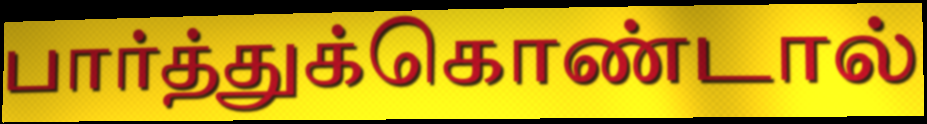
பார்த்துக்கொண்டால்